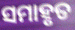
ସମାହୃତ